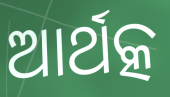
ଆର୍ଥତ୍କ